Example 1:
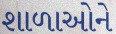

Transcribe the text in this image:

શાળાઓને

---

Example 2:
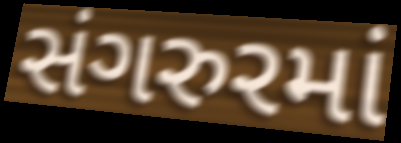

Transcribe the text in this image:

સંગરુરમાં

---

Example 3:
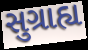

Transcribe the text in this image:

સુગ્રાહ્ય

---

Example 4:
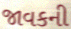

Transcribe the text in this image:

જાવકની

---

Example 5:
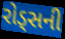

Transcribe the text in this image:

રોડ્સની